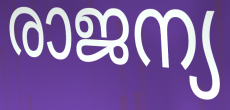
രാജന്യ